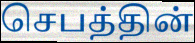
செபத்தின்